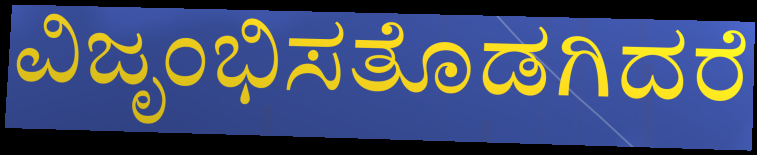
ವಿಜೃಂಭಿಸತೊಡಗಿದರೆ